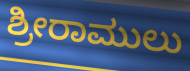
ಶ್ರೀರಾಮುಲು